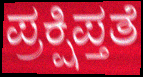
ಪ್ರಕ್ಷಿಪ್ತತೆ